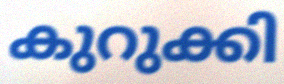
കുറുക്കി